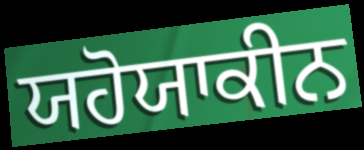
ਯਹੋਯਾਕੀਨ